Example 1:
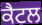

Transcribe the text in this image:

ਕੈਟਲ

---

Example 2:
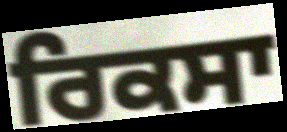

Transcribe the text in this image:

ਰਿਕਸਾ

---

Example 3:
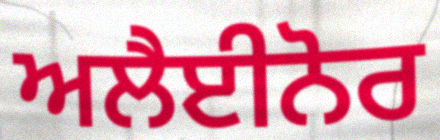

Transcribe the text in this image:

ਅਲੈਈਨੋਰ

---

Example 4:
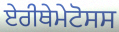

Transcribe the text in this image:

ਏਰੀਥੇਮੇਟੋਸਸ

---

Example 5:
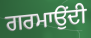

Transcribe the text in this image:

ਗਰਮਾਉਂਦੀ